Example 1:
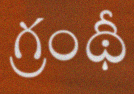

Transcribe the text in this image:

గ్రంథీ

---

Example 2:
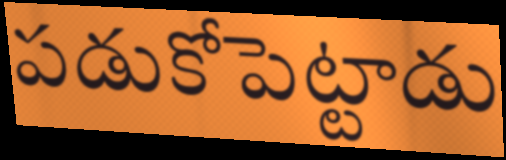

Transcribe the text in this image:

పడుకోపెట్టాడు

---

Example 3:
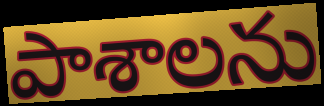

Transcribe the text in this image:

పాశాలను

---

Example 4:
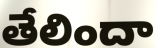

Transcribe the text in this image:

తేలిందా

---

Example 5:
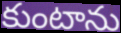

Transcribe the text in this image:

కుంటాను